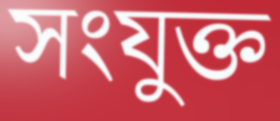
সংযুক্ত